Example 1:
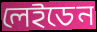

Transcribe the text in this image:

লেইডেন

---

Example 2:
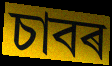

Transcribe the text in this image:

চাবৰ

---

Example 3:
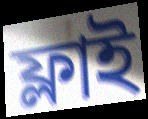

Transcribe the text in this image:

ফ্লাই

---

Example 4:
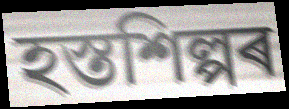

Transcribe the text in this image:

হস্তশিল্পৰ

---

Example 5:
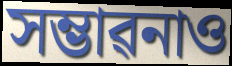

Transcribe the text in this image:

সম্ভাৱনাও